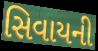
સિવાયની